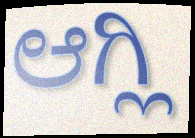
ಆಗ್ಲಿ